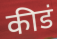
कीडं